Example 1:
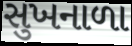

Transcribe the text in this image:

સુખનાળા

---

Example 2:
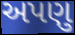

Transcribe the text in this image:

અપણુ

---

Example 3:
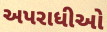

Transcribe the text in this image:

અપરાધીઓ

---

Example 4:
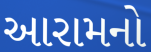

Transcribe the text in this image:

આરામનો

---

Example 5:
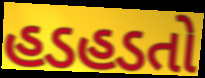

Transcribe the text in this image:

હડહડતો